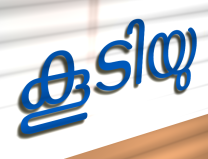
കൂടിയു